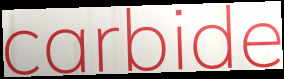
carbide